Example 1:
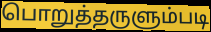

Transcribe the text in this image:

பொறுத்தருளும்படி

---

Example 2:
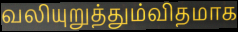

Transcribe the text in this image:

வலியுறுத்தும்விதமாக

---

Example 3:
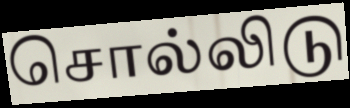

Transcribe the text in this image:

சொல்லிடு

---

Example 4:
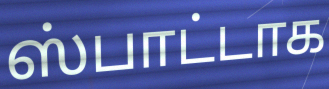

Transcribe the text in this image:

ஸ்பாட்டாக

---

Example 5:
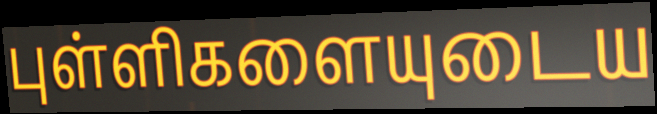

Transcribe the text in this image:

புள்ளிகளையுடைய